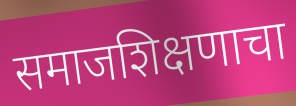
समाजशिक्षणाचा